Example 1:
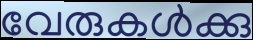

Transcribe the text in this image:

വേരുകൾക്കു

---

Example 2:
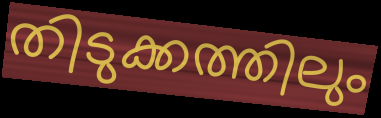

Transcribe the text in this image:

തിടുക്കത്തിലും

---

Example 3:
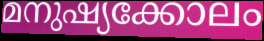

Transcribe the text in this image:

മനുഷ്യക്കോലം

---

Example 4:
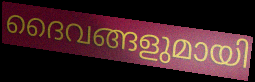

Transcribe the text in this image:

ദൈവങ്ങളുമായി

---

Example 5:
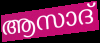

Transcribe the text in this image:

ആസാദ്